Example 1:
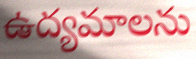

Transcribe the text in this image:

ఉద్యమాలను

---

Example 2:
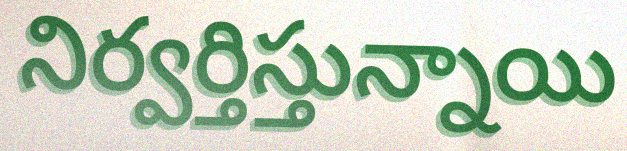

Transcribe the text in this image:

నిర్వర్తిస్తున్నాయి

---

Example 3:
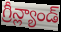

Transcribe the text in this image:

గ్రీన్ల్యాండ్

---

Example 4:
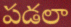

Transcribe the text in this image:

పడలా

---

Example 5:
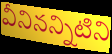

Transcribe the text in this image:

వీనినన్నిటిని